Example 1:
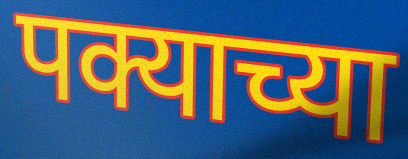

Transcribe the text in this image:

पक्याच्या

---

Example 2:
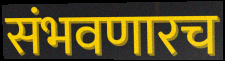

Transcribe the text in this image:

संभवणारच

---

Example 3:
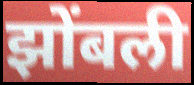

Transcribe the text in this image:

झोंबली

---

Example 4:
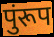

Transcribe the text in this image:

पुंरूप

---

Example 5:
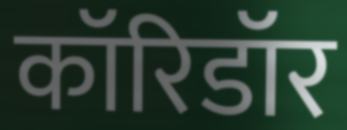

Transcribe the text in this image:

कॉरिडॉर